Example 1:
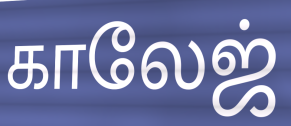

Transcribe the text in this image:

காலேஜ்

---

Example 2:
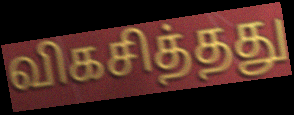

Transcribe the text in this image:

விகசித்தது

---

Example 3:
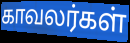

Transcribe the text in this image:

காவலர்கள்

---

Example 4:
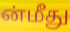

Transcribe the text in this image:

ன்மீது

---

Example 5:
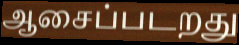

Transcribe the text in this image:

ஆசைப்படறது